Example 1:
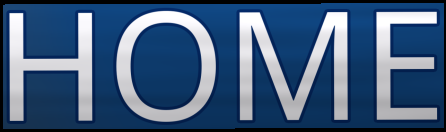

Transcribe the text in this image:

HOME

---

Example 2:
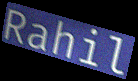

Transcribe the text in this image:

Rahil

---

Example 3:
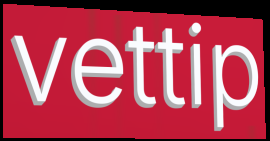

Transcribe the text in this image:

vettip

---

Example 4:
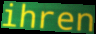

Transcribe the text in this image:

ihren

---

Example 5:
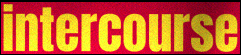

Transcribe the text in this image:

intercourse